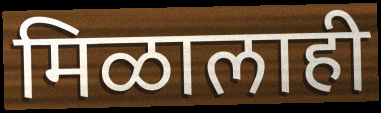
मिळालाही